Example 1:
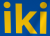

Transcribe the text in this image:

iki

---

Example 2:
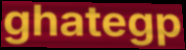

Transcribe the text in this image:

ghategp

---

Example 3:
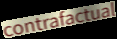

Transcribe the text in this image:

contrafactual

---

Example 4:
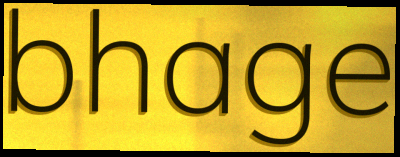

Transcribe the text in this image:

bhage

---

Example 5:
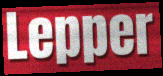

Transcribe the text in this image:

Lepper